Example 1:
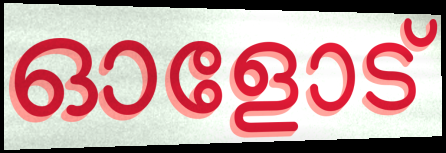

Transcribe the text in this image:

ഓളോട്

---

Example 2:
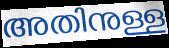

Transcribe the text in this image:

അതിനുള്ള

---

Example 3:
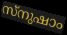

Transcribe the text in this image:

സ്നുഷാം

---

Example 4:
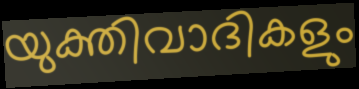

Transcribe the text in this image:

യുക്തിവാദികളും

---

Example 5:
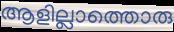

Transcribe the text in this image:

ആളില്ലാത്തൊരു